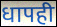
धापही